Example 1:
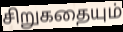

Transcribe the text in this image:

சிறுகதையும்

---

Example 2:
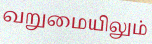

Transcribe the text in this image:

வறுமையிலும்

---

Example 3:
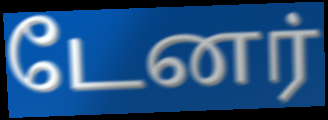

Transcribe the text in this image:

டேனர்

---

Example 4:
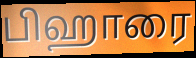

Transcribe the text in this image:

பிஹாரை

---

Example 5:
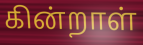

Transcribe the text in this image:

கின்றாள்